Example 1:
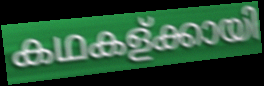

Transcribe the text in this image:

കഥകള്ക്കായി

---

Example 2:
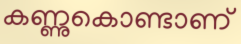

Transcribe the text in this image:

കണ്ണുകൊണ്ടാണ്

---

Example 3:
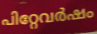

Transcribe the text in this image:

പിറ്റേവർഷം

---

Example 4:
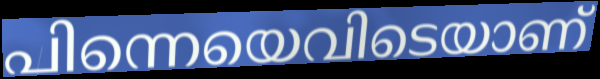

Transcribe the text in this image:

പിന്നെയെവിടെയാണ്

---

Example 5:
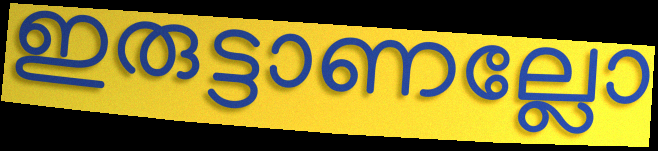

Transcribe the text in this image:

ഇരുട്ടാണല്ലോ